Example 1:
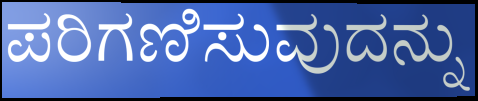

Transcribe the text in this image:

ಪರಿಗಣಿಸುವುದನ್ನು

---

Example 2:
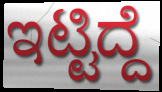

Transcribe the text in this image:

ಇಟ್ಟಿದ್ದೆ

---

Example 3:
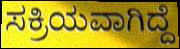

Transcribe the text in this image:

ಸಕ್ರಿಯವಾಗಿದ್ದೆ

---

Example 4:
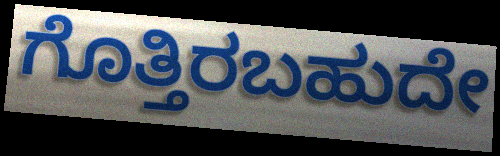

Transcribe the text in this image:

ಗೊತ್ತಿರಬಹುದೇ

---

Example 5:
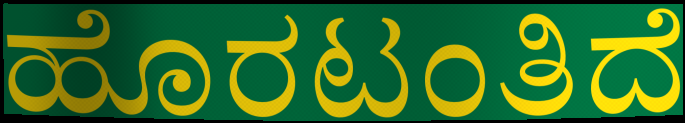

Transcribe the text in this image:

ಹೊರಟಂತಿದೆ